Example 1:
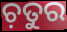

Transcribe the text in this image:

ଚ଼ତୁର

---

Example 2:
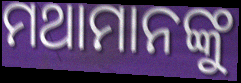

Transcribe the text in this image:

ମଥାମାନଙ୍କୁ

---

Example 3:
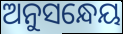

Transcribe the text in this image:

ଅନୁସନ୍ଧେୟ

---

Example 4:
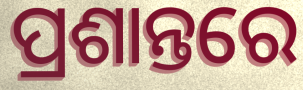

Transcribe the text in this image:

ପ୍ରଶାନ୍ତରେ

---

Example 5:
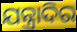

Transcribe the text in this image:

ଯନ୍ତ୍ରାଦିର